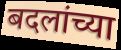
बदलांच्या